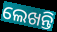
ଲେଖନ୍ତି